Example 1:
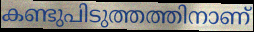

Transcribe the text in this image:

കണ്ടുപിടുത്തത്തിനാണ്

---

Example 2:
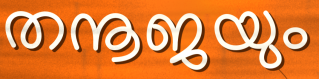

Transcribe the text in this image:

തനൂജയും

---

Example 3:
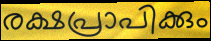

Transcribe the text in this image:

രക്ഷപ്രാപിക്കും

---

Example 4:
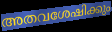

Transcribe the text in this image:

അതവശേഷിക്കും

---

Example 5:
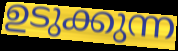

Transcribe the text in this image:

ഉടുക്കുന്ന